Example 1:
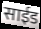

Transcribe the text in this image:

साईड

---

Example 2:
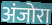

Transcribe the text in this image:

अंजोरा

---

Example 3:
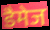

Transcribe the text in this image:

डैमेज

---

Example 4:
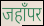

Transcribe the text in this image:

जहाँपर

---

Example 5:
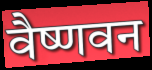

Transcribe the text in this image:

वैष्णवन